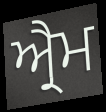
ਐ੍ਰਮ